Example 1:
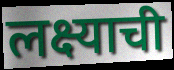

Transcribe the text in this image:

लक्ष्याची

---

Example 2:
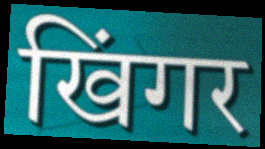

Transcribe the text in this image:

खिंगर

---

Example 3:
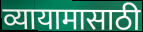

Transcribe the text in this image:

व्यायामासाठी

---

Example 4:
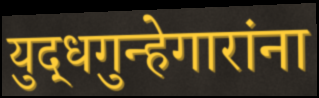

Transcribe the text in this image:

युद्धगुन्हेगारांना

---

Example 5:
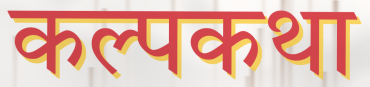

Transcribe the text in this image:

कल्पकथा